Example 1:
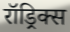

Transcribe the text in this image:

रॉड्रिक्स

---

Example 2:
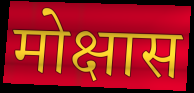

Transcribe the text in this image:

मोक्षास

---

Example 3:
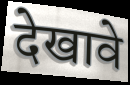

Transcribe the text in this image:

देखावे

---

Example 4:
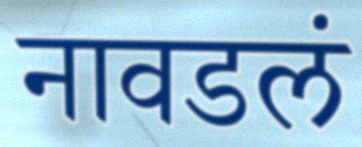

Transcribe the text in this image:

नावडलं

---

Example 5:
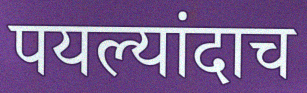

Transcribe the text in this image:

पयल्यांदाच